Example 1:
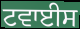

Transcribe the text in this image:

ਟਵਾਈਸ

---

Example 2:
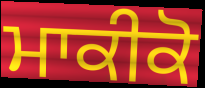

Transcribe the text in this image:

ਮਾਕੀਕੋ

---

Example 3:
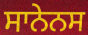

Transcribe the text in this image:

ਸਾਨੇਨਸ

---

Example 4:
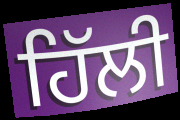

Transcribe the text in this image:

ਹਿੱਲੀ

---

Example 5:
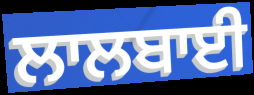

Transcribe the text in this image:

ਲਾਲਬਾਈ